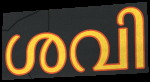
ശവി